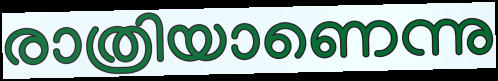
രാത്രിയാണെന്നു